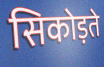
सिकोड़ते